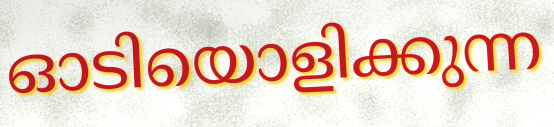
ഓടിയൊളിക്കുന്ന